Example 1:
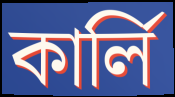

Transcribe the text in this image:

কার্লি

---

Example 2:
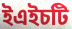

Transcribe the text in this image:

ইএইচটি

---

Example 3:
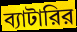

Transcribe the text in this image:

ব্যাটারির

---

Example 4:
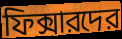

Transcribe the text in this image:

ফিক্সারদের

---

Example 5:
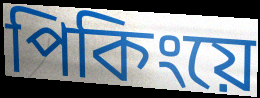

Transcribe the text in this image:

পিকিংয়ে